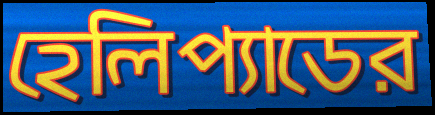
হেলিপ্যাডের